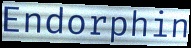
Endorphin